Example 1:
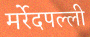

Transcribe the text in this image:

मर्रेदपल्ली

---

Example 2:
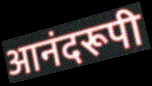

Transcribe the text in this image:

आनंदरूपी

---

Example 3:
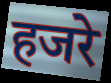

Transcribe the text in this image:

हजरे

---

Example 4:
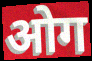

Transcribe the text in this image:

ओग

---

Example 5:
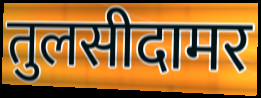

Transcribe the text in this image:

तुलसीदामर